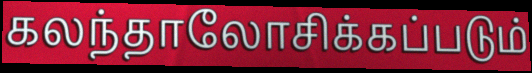
கலந்தாலோசிக்கப்படும்